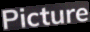
Picture